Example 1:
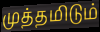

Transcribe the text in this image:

முத்தமிடும்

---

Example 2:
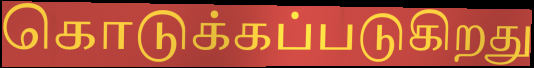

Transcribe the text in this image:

கொடுக்கப்படுகிறது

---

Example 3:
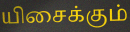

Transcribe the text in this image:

யிசைக்கும்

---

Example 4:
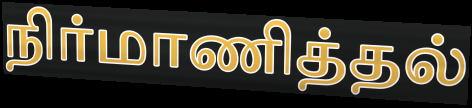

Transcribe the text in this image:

நிர்மாணித்தல்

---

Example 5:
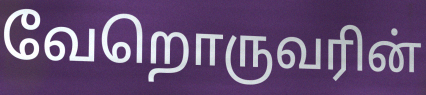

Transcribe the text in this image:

வேறொருவரின்